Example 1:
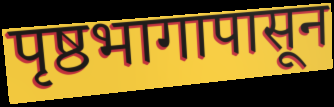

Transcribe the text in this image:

पृष्ठभागापासून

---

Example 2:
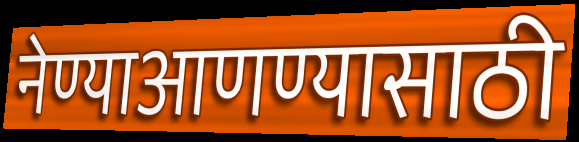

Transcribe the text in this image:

नेण्याआणण्यासाठी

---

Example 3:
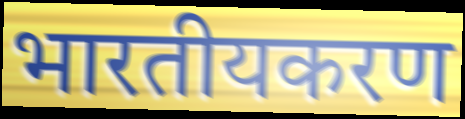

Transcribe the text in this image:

भारतीयकरण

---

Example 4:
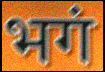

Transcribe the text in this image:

भगं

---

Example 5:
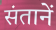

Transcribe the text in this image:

संतानें